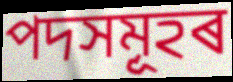
পদসমূহৰ